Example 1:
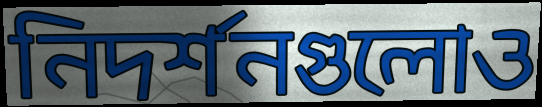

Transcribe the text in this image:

নিদর্শনগুলোও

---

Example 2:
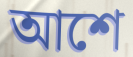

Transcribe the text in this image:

আশে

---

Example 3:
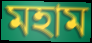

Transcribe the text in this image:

মহাম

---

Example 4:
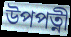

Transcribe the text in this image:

উপপত্নী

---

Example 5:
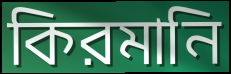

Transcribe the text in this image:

কিরমানি